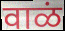
वाळं